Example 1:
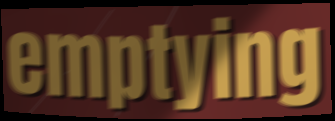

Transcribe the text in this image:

emptying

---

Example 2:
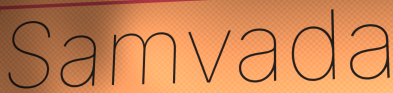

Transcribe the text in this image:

Samvada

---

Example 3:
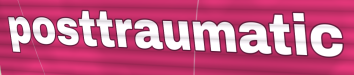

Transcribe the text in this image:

posttraumatic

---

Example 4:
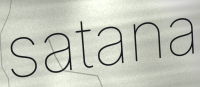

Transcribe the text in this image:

satana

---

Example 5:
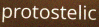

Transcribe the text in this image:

protostelic